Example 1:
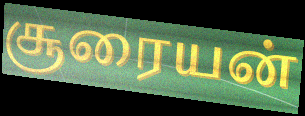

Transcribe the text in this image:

சூரையன்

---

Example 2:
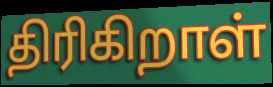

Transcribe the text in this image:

திரிகிறாள்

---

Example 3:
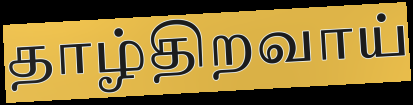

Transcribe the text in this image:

தாழ்திறவாய்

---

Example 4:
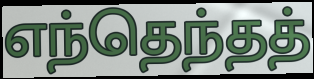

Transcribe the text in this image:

எந்தெந்தத்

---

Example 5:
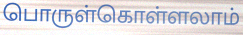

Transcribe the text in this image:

பொருள்கொள்ளலாம்